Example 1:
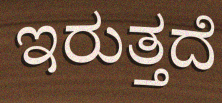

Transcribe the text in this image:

ಇರುತ್ತದೆ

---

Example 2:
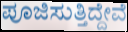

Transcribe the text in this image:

ಪೂಜಿಸುತ್ತಿದ್ದೇವೆ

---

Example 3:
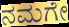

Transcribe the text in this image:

ನಮಗೇ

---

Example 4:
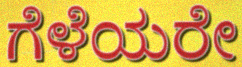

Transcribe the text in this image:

ಗೆಳೆಯರೇ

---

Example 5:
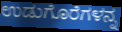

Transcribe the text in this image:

ಉಡುಗೊರೆಗಳನ್ನ